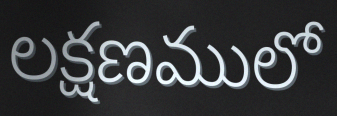
లక్షణములో